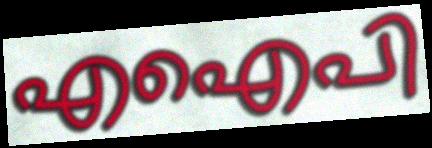
എഐപി